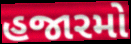
હજારમો